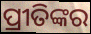
ପ୍ରୀତିଙ୍କର